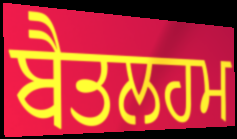
ਬੈਤਲਹਮ